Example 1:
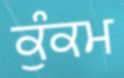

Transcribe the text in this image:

ਕੁੰਕਮ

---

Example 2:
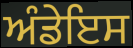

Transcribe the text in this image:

ਅੰਡੇਇਸ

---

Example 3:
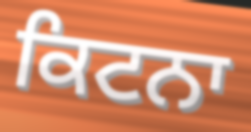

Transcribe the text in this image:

ਕਿਟਨਾ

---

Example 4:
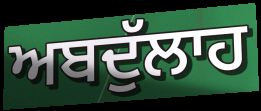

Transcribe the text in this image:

ਅਬਦੁੱਲਾਹ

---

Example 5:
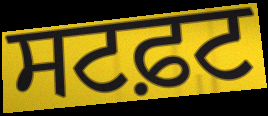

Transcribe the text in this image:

ਸਟਫ਼ਟ